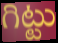
గిట్టు